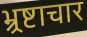
भ्र्रष्टाचार